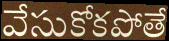
వేసుకోకపోతే